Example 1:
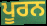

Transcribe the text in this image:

ਪੂਰਨ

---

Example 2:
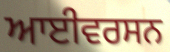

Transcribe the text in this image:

ਆਈਵਰਸਨ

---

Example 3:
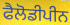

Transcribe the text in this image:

ਫੈਲੋਡੀਪੀਨ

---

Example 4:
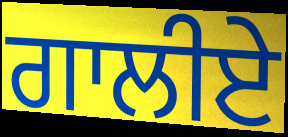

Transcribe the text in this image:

ਗਾਲੀਏ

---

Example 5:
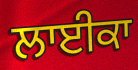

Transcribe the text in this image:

ਲਾਈਕਾ